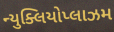
ન્યુક્લિયોપ્લાઝમ